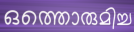
ഒത്തൊരുമിച്ച